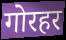
गोरहर